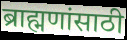
ब्राह्मणांसाठी